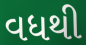
વધથી